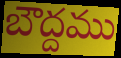
బౌద్దము